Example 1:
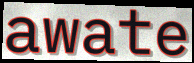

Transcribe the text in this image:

awate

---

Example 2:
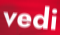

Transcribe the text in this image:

vedi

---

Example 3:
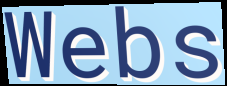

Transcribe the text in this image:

Webs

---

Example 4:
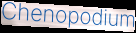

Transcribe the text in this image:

Chenopodium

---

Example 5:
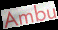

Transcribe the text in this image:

Ambu